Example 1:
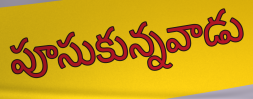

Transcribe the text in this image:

పూసుకున్నవాడు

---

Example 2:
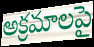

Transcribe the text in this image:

అక్రమాలపై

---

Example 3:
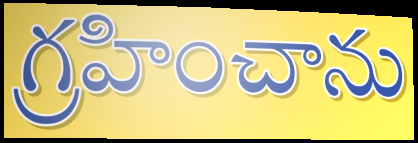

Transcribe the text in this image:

గ్రహించాను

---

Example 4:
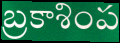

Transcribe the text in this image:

బ్రకాశింప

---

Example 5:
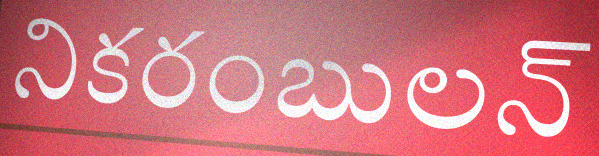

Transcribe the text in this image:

నికరంబులన్